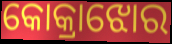
କୋକ୍ରାଝୋର